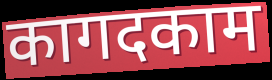
कागदकाम